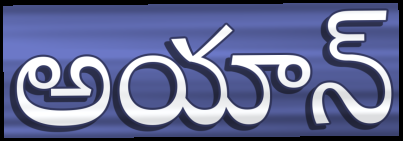
అయాన్